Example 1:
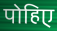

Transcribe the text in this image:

पोहिए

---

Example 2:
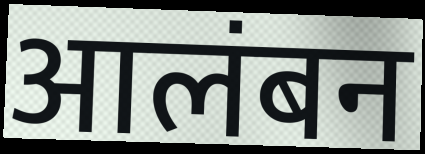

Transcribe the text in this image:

आलंबन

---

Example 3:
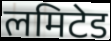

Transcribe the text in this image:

लमिटेड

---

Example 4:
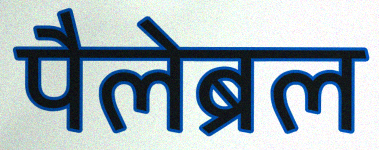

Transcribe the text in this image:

पैलेब्रल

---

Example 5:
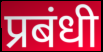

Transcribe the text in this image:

प्रबंधी